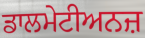
ਡਾਲਮੇਟੀਅਨਜ਼